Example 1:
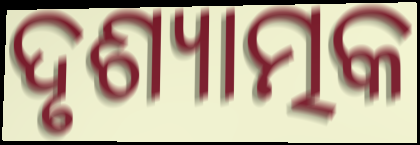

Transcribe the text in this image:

ଦୃଶ୍ୟାତ୍ମକ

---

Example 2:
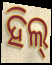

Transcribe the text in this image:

ହିଲ୍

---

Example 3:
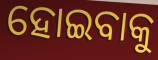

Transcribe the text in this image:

ହୋଇବାକୁ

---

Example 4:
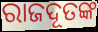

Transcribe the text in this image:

ରାଜଦୂତଙ୍କ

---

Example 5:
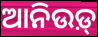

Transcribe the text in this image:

ଆନିଉଡ଼୍